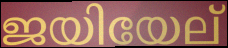
ജയിയേല്